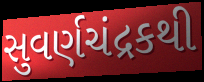
સુવર્ણચંદ્રકથી